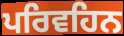
ਪਰਿਵਹਿਨ